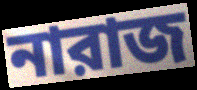
নারাজ